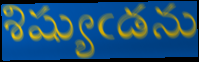
శిష్యుఁడను